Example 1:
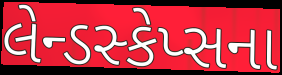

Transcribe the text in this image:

લેન્ડસ્કેપ્સના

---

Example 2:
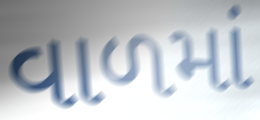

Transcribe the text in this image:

વાળમાં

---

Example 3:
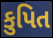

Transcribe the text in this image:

કુપિત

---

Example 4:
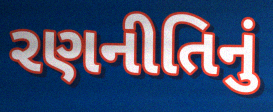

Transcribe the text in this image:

રણનીતિનું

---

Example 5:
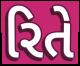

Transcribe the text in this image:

રિતે